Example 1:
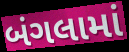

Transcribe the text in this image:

બંગલામાં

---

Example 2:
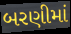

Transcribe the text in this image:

બરણીમાં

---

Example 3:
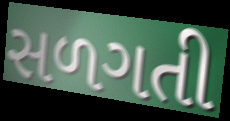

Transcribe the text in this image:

સળગતી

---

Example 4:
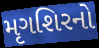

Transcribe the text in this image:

મૃગશિરનો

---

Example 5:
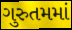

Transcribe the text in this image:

ગુરુતમમાં